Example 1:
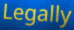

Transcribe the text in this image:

Legally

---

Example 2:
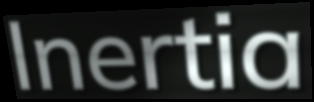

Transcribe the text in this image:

Inertia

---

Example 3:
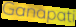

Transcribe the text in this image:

Ganapati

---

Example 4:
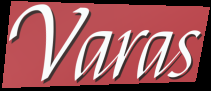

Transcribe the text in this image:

Varas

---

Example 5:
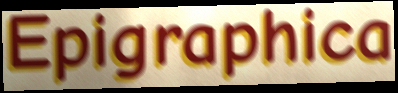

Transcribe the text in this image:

Epigraphica